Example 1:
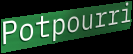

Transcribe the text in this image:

Potpourri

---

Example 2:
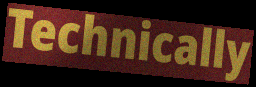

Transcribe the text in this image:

Technically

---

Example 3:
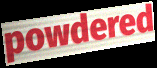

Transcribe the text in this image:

powdered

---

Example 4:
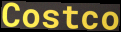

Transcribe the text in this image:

Costco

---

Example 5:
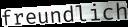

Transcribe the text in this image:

freundlich